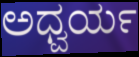
ಅಧ್ವರ್ಯ